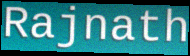
Rajnath